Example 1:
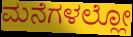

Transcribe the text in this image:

ಮನೆಗಳಲ್ಲೋ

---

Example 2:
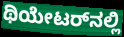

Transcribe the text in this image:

ಥಿಯೇಟರ್‌ನಲ್ಲಿ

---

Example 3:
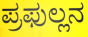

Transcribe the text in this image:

ಪ್ರಫುಲ್ಲನ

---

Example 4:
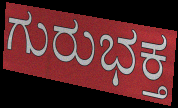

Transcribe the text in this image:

ಗುರುಭಕ್ತ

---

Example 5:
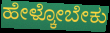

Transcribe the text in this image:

ಹೇಳ್ಕೋಬೇಕು